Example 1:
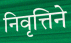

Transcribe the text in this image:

निवृत्तिने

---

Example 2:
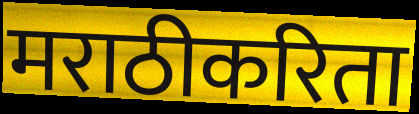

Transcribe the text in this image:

मराठीकरिता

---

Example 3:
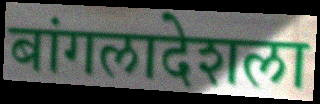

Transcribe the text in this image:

बांगलादेशला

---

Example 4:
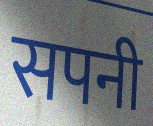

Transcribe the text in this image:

सपनी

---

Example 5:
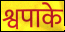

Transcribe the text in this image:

श्वपाके